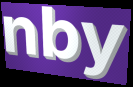
nby